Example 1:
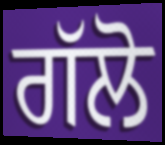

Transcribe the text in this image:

ਗੱਲੋ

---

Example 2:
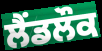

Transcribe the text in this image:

ਲੈਂਡਲੌਕ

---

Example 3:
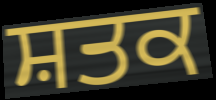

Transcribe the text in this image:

ਸ਼ਤਕ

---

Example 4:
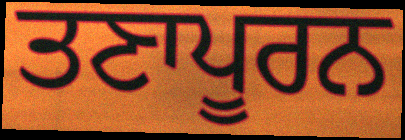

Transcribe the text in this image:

ਤਣਾਪੂਰਨ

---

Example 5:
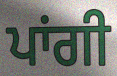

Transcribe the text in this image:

ਪਾਂਗੀ